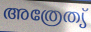
അത്രേത്യ്